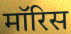
मॉरिस